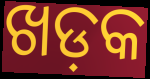
ଖଡ଼କ